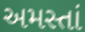
અમસ્તાં